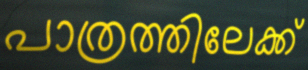
പാത്രത്തിലേക്ക്